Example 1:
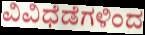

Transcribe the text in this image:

ವಿವಿಧೆಡೆಗಳಿಂದ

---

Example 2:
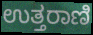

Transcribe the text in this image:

ಉತ್ತರಾಣಿ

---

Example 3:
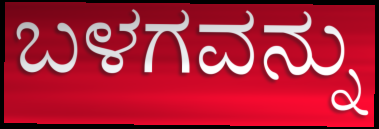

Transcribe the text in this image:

ಬಳಗವನ್ನು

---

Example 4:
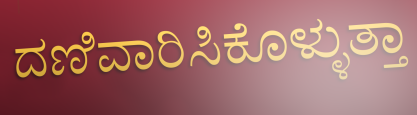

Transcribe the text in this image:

ದಣಿವಾರಿಸಿಕೊಳ್ಳುತ್ತಾ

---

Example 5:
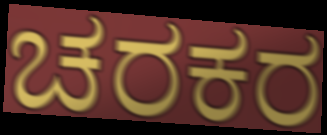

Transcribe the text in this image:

ಚರಕರ